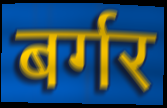
बर्गर